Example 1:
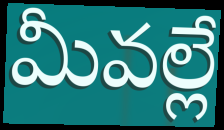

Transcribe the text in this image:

మీవల్లే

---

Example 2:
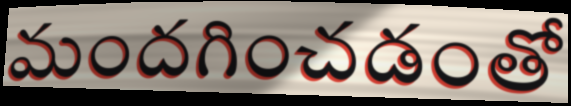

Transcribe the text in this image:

మందగించడంతో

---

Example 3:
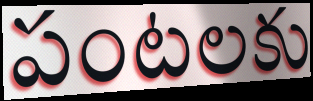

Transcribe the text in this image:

పంటలకు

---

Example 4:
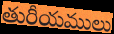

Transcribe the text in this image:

తురీయములు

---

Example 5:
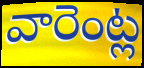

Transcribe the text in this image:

వారెంట్ల